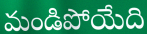
మండిపోయేది